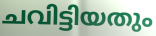
ചവിട്ടിയതും